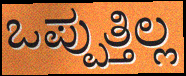
ಒಪ್ಪುತ್ತಿಲ್ಲ